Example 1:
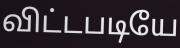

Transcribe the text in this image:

விட்டபடியே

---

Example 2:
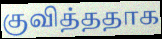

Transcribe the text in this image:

குவித்ததாக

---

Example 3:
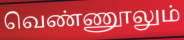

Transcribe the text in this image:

வெண்ணூலும்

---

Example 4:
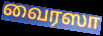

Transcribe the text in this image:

வைரஸா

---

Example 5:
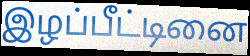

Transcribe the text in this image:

இழப்பீட்டினை